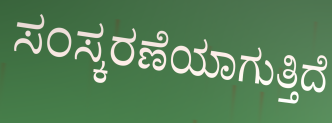
ಸಂಸ್ಕರಣೆಯಾಗುತ್ತಿದೆ